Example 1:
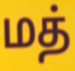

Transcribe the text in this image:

மத்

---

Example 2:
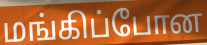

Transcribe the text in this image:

மங்கிப்போன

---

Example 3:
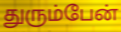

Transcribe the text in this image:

துரும்பேன்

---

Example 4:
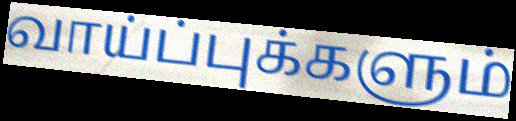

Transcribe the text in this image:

வாய்ப்புக்களும்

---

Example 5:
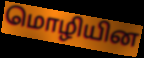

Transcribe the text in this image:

மொழியின